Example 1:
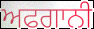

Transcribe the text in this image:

ਅਫਗਾਨੀ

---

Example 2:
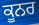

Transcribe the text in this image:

ਕੂਨਰ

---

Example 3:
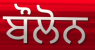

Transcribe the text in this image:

ਬੌਲੋਨ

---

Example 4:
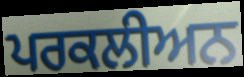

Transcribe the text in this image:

ਪਰਕਲੀਅਨ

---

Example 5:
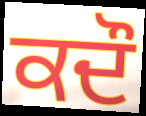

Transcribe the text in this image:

ਕਦੌ